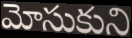
మోసుకుని